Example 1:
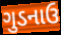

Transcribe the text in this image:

ગુડનાઉ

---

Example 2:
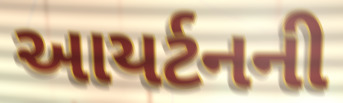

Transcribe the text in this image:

આયર્ટનની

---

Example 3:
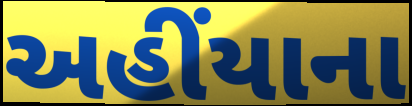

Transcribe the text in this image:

અહીંયાના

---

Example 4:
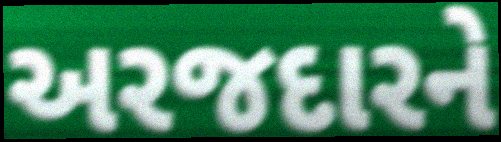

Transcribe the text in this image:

અરજદારને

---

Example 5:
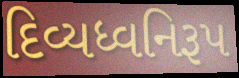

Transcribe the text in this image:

દિવ્યધ્વનિરૂપ